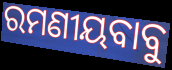
ରମଣୀୟବାବୁ